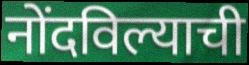
नोंदविल्याची